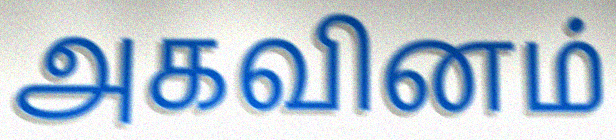
அகவினம்